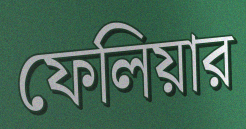
ফেলিয়ার